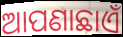
ଆପଣାଛାଏଁ